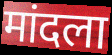
मांदला